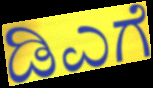
ಡಿಎಗೆ